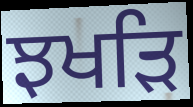
ਝਖੜਿ